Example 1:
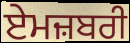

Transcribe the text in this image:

ਏਮਜ਼ਬਰੀ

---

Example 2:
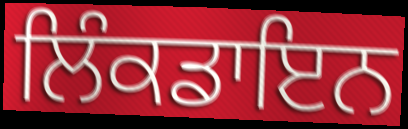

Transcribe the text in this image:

ਲਿੰਕਡਾਇਨ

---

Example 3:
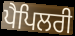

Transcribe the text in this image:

ਪੈਪਿਲਰੀ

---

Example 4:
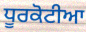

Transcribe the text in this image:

ਧੂਰਕੋਟੀਆ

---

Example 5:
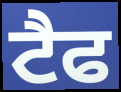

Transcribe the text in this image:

ਟੈਫ